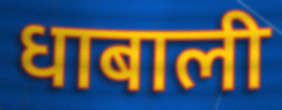
धाबाली